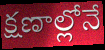
క్షణాల్లోనే